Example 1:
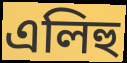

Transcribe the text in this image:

এলিহু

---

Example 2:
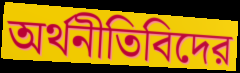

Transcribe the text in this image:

অর্থনীতিবিদের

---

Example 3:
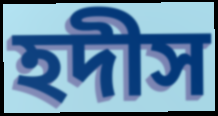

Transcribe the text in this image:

হদীস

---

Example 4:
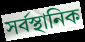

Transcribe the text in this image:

সর্বস্থানিক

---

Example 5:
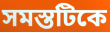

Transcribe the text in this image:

সমস্তটিকে